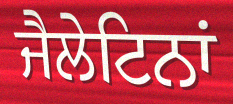
ਜੈਲੇਟਿਨਾਂ